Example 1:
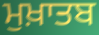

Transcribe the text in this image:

ਮੁਖ਼ਾਤਬ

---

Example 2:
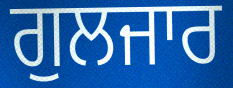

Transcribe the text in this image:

ਗੁਲਜਾਰ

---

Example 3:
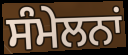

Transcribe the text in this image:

ਸੰਮੇਲਨਾਂ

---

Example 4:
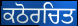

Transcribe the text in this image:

ਕਠੋਰਚਿਤ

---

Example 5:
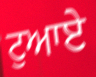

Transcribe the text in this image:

ਟੁਆਏ